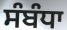
ਸੰਬੰਧਾ